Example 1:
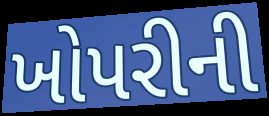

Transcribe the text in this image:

ખોપરીની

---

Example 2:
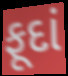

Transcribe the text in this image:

ફૂદાં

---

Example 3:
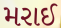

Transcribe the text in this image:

મરાઈ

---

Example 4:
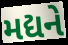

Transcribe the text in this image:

મદ્યને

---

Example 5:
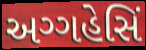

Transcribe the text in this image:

અગ્ગહેસિં